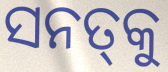
ସନତ୍‍କୁ